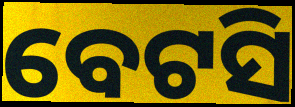
ବେଟସି